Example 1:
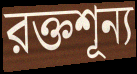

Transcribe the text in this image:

রক্তশূন্য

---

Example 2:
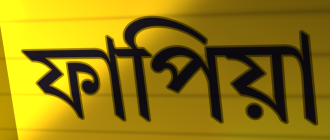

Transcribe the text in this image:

ফাপিয়া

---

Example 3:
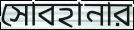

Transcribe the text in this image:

সোবহানার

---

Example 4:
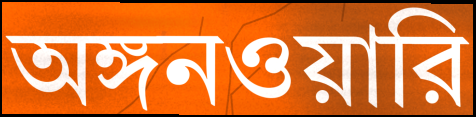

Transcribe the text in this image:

অঙ্গনওয়ারি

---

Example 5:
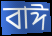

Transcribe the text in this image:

বাঈ